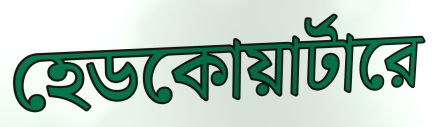
হেডকোয়ার্টারে